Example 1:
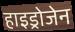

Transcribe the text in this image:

हाइड्रोजेन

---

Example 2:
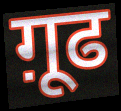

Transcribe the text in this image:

ग़ूढ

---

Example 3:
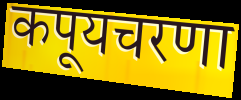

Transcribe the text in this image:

कपूयचरणा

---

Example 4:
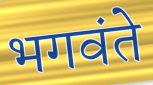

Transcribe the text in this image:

भगवंते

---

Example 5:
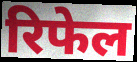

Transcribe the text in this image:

रिफेल